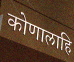
कोणालाहि